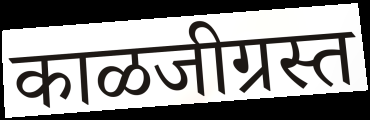
काळजीग्रस्त